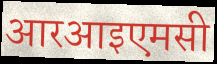
आरआइएमसी